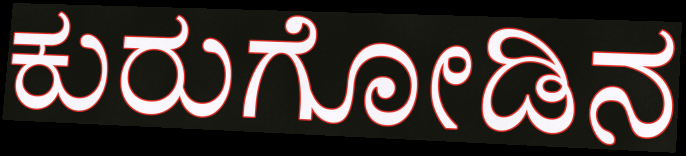
ಕುರುಗೋಡಿನ